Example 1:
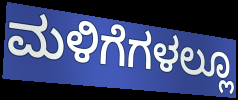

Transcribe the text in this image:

ಮಳಿಗೆಗಳಲ್ಲೂ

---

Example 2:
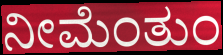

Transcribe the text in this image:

ನೀಮೆಂತುಂ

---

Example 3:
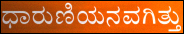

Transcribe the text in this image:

ಧಾರುಣಿಯನವಗಿತ್ತು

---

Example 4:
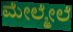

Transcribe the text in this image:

ಮೇಲ್ಮೇಲೆ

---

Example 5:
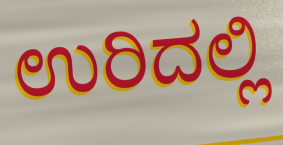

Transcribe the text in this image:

ಉರಿದಲ್ಲಿ